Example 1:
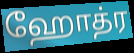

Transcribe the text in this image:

ஹோத்ர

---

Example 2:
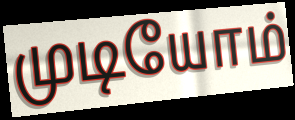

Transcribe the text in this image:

முடியோம்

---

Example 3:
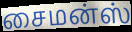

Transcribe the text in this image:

சைமன்ஸ்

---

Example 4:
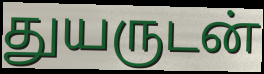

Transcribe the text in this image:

துயருடன்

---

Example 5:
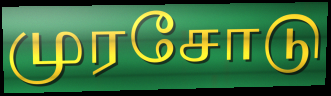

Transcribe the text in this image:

முரசோடு